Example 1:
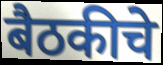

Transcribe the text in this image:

बैठकीचे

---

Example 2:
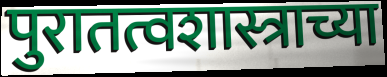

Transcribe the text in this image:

पुरातत्वशास्त्राच्या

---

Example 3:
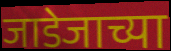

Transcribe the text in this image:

जाडेजाच्या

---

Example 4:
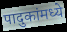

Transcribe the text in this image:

पादुकांमध्ये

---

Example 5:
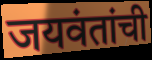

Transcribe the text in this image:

जयवंतांची